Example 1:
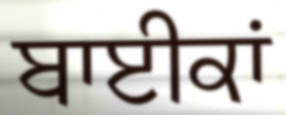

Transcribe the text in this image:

ਬਾਈਕਾਂ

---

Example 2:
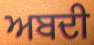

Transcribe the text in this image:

ਅਬਦੀ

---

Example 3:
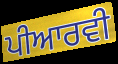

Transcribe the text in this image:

ਪੀਆਰਵੀ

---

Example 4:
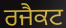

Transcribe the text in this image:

ਰਜੈਕਟ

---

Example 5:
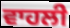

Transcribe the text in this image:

ਵਾਹਲੀ